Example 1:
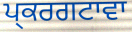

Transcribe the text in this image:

ਪ੍ਕਰਗਟਾਵਾ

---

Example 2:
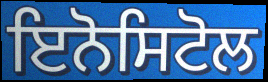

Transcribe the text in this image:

ਇਨੋਸਿਟੋਲ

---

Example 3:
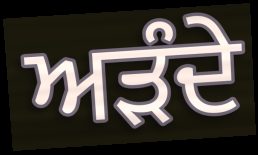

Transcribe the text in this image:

ਅੜੰਦੇ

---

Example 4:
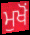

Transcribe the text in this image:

ਮੁਖੋਂ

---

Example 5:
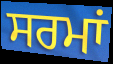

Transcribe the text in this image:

ਸਰਮਾਂ